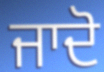
ਜਾਦੋ